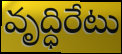
వృద్ధిరేటు